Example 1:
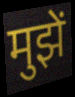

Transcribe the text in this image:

मुझें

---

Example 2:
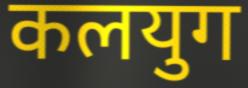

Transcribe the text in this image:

कलयुग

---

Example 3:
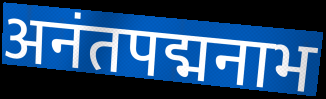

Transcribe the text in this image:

अनंतपद्मनाभ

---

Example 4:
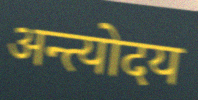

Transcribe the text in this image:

अन्त्योदय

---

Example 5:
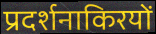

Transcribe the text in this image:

प्रदर्शनाकिरयों